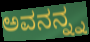
ಅವನನ್ನ್ನ